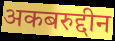
अकबरुद्दीन